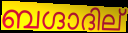
ബഗ്ദാദില്